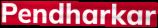
Pendharkar